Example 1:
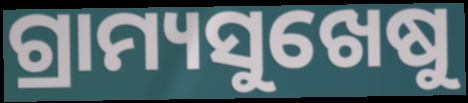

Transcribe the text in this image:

ଗ୍ରାମ୍ୟସୁଖେଷୁ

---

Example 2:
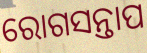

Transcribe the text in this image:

ରୋଗସନ୍ତାପ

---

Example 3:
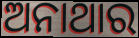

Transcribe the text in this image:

ଅନାଥାର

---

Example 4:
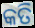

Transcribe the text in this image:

କତି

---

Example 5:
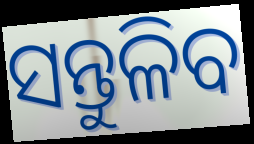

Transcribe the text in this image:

ସନ୍ତୁଳିବ